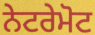
ਨੇਟਰੇਮੋਟ